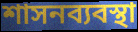
শাসনব্যবস্থা